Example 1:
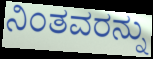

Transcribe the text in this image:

ನಿಂತವರನ್ನು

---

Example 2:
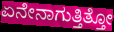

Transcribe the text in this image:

ಏನೇನಾಗುತ್ತಿತ್ತೋ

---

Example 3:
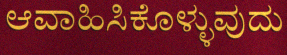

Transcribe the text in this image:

ಆವಾಹಿಸಿಕೊಳ್ಳುವುದು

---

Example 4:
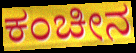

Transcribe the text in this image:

ಕಂಚೀನ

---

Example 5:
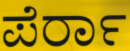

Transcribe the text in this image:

ಪೆರ್ರಾ